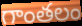
గాంతలం